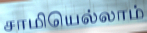
சாமியெல்லாம்